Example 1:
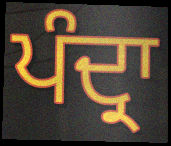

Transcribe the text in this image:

ਪੰਦ੍ਰਾ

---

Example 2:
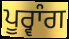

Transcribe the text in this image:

ਪੂਰ੍ਵਾੰਗ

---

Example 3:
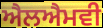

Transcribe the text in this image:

ਐਲਐਮਵੀ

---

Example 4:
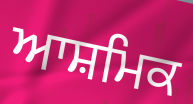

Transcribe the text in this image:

ਆਸ਼ਮਿਕ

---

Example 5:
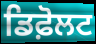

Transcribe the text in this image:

ਡਿਫ਼ੋਲਟ